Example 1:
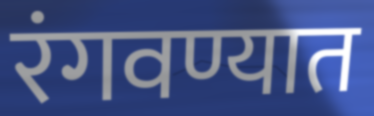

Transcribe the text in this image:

रंगवण्यात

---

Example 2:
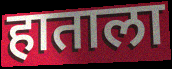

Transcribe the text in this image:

हाताला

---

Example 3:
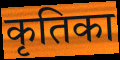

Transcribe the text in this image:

कृतिका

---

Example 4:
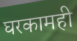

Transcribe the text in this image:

घरकामही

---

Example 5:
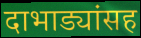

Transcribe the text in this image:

दाभाड्यांसह